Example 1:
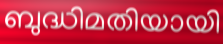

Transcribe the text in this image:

ബുദ്ധിമതിയായി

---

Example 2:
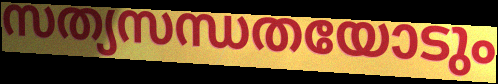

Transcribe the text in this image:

സത്യസന്ധതയോടും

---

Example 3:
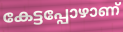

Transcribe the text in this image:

കേട്ടപ്പോഴാണ്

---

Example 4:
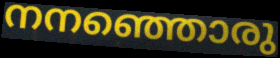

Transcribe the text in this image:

നനഞ്ഞൊരു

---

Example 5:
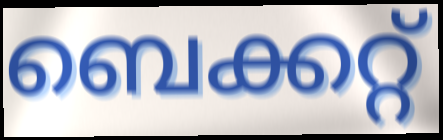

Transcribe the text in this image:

ബെക്കറ്റ്